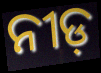
ନୀଡ଼